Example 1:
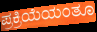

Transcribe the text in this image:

ಪ್ರಕ್ರಿಯೆಯಂತೂ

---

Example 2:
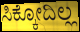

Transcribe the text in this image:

ಸಿಕ್ಕೋದಿಲ್ಲ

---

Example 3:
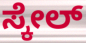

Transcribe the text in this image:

ಸ್ಕೇಲ್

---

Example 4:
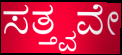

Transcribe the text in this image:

ಸತ್ತ್ವವೇ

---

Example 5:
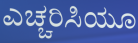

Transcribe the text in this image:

ಎಚ್ಚರಿಸಿಯೂ